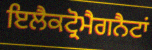
ਇਲੈਕਟ੍ਰੋਮੈਗਨੈਟਾਂ